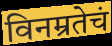
विनम्रतेचं